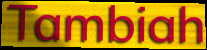
Tambiah